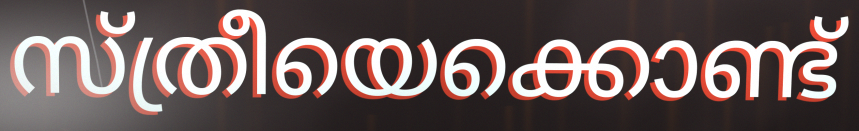
സ്ത്രീയെക്കൊണ്ട്